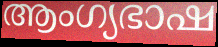
ആംഗ്യഭാഷ